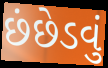
છંછેડવું